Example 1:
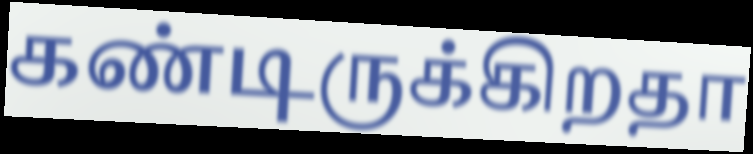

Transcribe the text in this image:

கண்டிருக்கிறதா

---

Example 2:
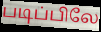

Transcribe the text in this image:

படிப்பிலே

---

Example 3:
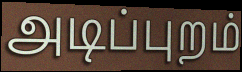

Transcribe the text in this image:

அடிப்புறம்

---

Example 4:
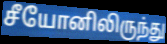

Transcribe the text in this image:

சீயோனிலிருந்து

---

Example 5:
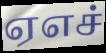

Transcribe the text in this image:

ஏஎச்